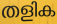
തളിക